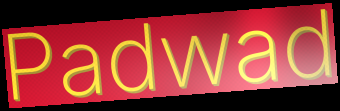
Padwad